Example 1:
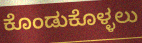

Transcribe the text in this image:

ಕೊಂಡುಕೊಳ್ಳಲು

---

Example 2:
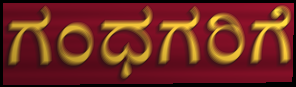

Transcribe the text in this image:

ಗಂಧಗರಿಗೆ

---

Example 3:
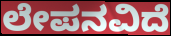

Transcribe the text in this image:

ಲೇಪನವಿದೆ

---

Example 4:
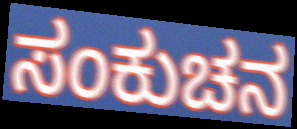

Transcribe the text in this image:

ಸಂಕುಚನ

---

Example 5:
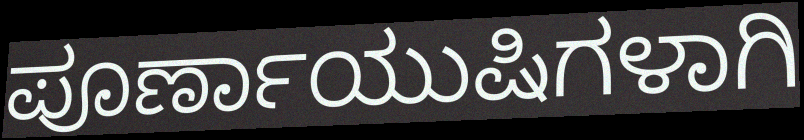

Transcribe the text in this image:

ಪೂರ್ಣಾಯುಷಿಗಳಾಗಿ